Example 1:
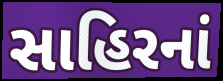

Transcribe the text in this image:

સાહિરનાં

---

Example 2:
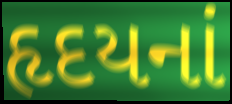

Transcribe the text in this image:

હૃદયનાં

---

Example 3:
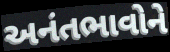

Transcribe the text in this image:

અનંતભાવોને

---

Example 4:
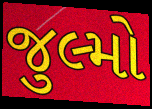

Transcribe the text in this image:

જુલ્મો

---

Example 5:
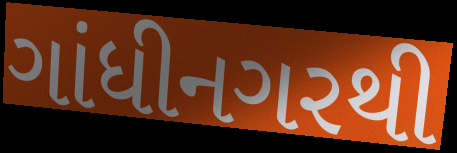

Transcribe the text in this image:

ગાંધીનગરથી